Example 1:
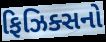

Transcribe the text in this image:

ફિઝિક્સનો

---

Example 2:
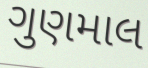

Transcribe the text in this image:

ગુણમાલ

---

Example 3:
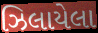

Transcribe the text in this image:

ઝિલાયેલા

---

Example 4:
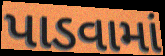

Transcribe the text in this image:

પાડવામાં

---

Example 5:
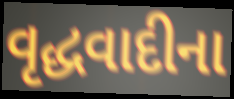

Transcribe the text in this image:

વૃદ્ધવાદીના